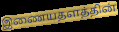
இணையதளத்தின்